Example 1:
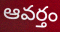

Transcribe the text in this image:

ఆవర్తం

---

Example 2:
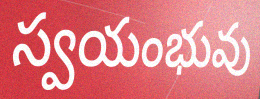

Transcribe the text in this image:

స్వయంభువు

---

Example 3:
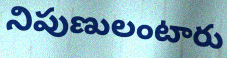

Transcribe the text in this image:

నిపుణులంటారు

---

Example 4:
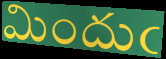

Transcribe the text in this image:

మిందుఁ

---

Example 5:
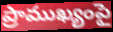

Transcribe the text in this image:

ప్రాముఖ్యంపై